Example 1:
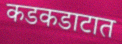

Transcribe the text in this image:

कडकडाटात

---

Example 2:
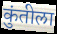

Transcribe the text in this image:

कुंतीला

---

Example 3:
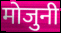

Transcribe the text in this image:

मोजुनी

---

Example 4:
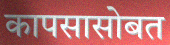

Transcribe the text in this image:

कापसासोबत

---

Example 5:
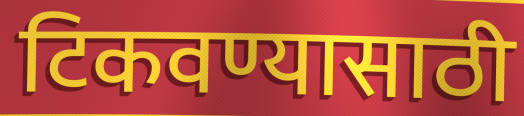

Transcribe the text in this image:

टिकवण्यासाठी